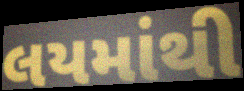
લયમાંથી